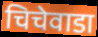
चिचेवाडा